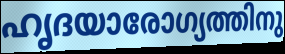
ഹൃദയാരോഗ്യത്തിനു